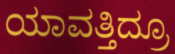
ಯಾವತ್ತಿದ್ರೂ